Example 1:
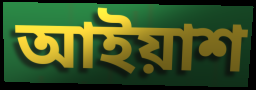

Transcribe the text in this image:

আইয়াশ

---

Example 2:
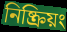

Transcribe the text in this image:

নিষ্ক্রিয়ং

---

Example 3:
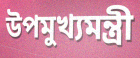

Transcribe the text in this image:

উপমুখ্যমন্ত্রী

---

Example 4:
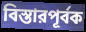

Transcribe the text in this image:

বিস্তারপূর্বক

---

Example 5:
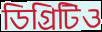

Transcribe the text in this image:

ডিগ্রিটিও